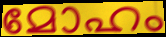
മോഹം